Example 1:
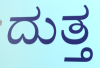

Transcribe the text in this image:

ದುತ್ತ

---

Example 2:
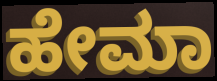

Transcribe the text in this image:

ಹೇಮಾ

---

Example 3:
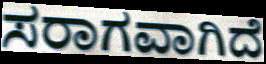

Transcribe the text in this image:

ಸರಾಗವಾಗಿದೆ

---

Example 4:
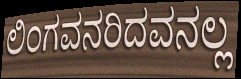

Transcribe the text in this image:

ಲಿಂಗವನರಿದವನಲ್ಲ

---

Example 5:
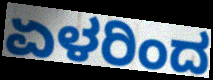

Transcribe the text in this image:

ಏಳರಿಂದ